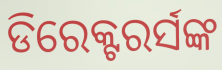
ଡିରେକ୍ଟରର୍ସଙ୍କ